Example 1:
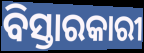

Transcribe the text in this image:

ବିସ୍ତାରକାରୀ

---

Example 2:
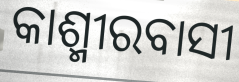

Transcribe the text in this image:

କାଶ୍ମୀରବାସୀ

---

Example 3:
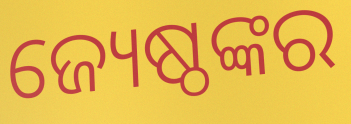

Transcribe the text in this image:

ଜ୍ୟେଷ୍ଠଙ୍କର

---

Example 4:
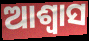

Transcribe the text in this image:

ଆଶ୍ୱାସ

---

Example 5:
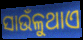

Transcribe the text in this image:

ସାଉଁଳୁଥାଏ